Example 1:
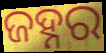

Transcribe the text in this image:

ଜହ୍ନର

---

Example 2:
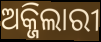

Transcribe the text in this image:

ଅକ୍ଜିଲାରୀ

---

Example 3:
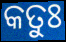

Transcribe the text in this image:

କତୁଃ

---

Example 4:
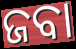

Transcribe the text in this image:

ଜବା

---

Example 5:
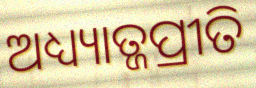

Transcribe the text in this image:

ଅଧ୍ୟ୍ୟାତ୍ଜପ୍ରୀତି